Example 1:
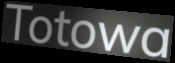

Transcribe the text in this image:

Totowa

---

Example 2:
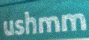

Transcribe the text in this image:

ushmm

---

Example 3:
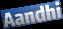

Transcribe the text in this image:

Aandhi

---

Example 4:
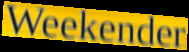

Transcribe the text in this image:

Weekender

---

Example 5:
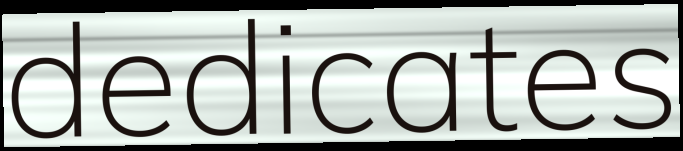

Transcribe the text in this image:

dedicates